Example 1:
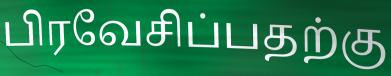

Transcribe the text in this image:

பிரவேசிப்பதற்கு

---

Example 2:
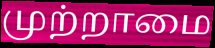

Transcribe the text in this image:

முற்றாமை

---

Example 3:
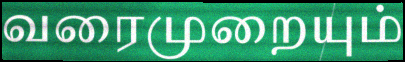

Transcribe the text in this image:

வரைமுறையும்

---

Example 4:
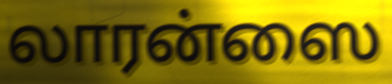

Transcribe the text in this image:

லாரன்ஸை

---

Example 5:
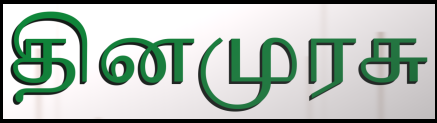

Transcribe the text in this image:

தினமுரசு